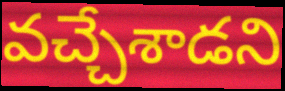
వచ్చేశాడని